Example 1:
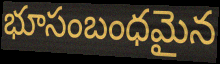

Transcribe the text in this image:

భూసంబంధమైన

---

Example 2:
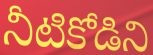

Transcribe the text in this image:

నీటికోడిని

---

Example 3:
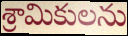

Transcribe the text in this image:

శ్రామికులను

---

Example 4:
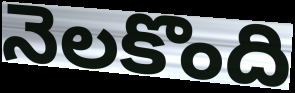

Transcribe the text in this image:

నెలకొంది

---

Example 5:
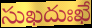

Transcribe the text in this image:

సుఖదుఃఖే